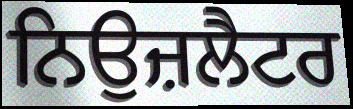
ਨਿਉਜ਼ਲੈਟਰ